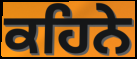
ਕਹਿਨੇ